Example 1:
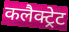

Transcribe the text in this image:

कलैक्ट्रेट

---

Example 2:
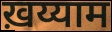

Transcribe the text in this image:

ख़य्याम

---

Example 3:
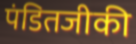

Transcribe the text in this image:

पंडितजीकी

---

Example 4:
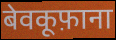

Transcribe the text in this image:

बेवकूफ़ाना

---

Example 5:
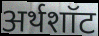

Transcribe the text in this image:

अर्थशॉट